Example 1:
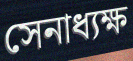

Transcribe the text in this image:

সেনাধ্যক্ষ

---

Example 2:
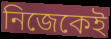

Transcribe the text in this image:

নিজেকেই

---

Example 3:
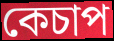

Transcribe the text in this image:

কেচাপ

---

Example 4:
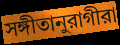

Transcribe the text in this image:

সঙ্গীতানুরাগীরা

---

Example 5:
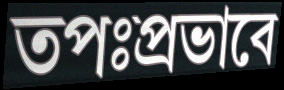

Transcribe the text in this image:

তপঃপ্রভাবে